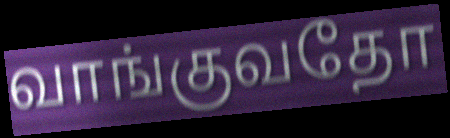
வாங்குவதோ